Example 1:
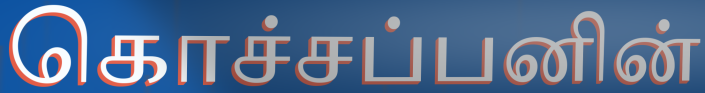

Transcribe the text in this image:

கொச்சப்பனின்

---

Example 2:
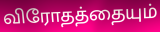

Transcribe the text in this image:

விரோதத்தையும்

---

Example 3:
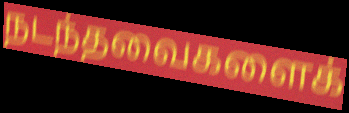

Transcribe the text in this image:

நடந்தவைகளைக்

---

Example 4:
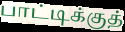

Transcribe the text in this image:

பாட்டிக்குத்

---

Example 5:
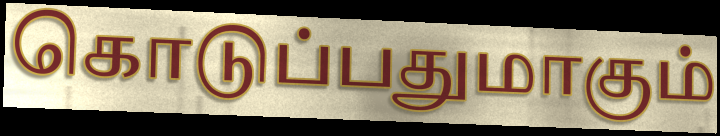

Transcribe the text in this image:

கொடுப்பதுமாகும்